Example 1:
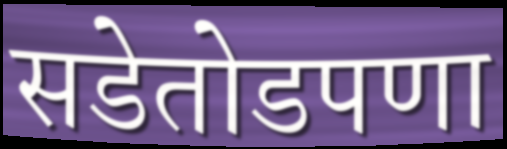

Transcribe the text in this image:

सडेतोडपणा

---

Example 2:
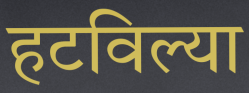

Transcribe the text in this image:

हटविल्या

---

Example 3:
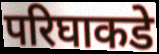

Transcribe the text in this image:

परिघाकडे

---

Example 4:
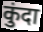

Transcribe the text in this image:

कुंदा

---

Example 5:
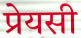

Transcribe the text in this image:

प्रेयसी